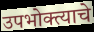
उपभोक्त्याचे